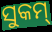
ସୁକମ୍